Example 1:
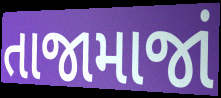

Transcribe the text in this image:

તાજામાજાં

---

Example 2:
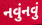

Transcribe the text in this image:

નવુંનવું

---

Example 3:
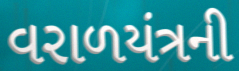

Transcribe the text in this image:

વરાળયંત્રની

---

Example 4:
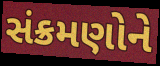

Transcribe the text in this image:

સંક્રમણોને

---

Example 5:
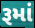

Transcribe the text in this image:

રૂમાં